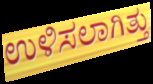
ಉಳಿಸಲಾಗಿತ್ತು